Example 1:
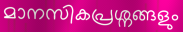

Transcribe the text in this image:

മാനസികപ്രശ്നങ്ങളും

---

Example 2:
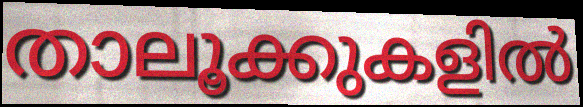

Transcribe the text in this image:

താലൂക്കുകളിൽ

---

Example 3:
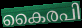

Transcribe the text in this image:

കൈരപി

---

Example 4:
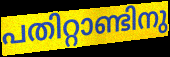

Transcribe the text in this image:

പതിറ്റാണ്ടിനു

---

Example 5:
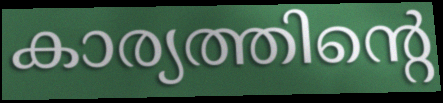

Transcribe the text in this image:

കാര്യത്തിന്റെ